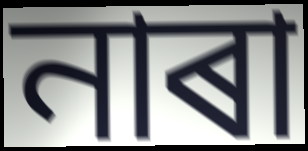
নাৰা